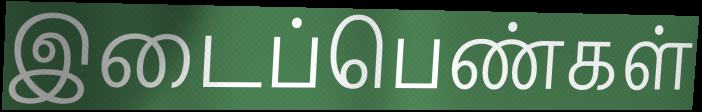
இடைப்பெண்கள்